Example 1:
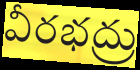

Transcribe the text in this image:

వీరభద్రు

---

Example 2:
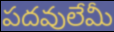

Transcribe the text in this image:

పదవులేమీ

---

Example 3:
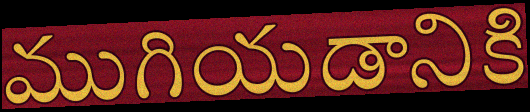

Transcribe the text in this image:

ముగియడానికి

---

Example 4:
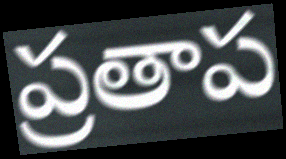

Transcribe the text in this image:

ప్రతాప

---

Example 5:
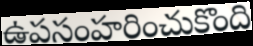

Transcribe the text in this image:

ఉపసంహరించుకొంది